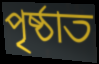
পৃষ্ঠাত